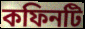
কফিনটি